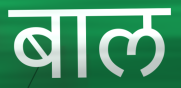
बाल